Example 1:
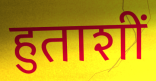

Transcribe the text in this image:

हुताशीं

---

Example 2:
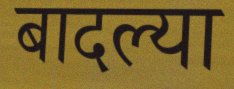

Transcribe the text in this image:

बादल्या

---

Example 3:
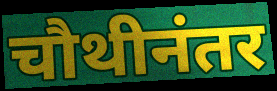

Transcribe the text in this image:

चौथीनंतर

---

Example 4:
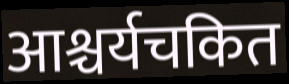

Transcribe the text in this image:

आश्चर्यचकित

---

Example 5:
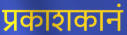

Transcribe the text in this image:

प्रकाशकानं